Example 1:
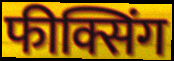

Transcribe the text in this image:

फीक्सिंग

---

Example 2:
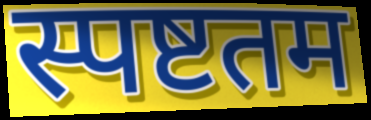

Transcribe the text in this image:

स्पष्टतम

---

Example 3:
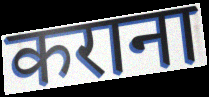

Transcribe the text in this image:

कराना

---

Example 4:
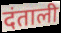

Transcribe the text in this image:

दंताली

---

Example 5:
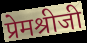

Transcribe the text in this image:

प्रेमश्रीजी